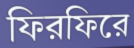
ফিরফিরে